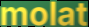
molat